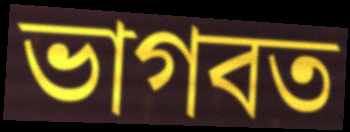
ভাগবত